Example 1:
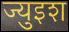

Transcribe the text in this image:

ज्युइश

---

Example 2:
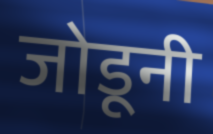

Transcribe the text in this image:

जोडूनी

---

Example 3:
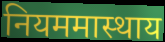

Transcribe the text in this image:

नियममास्थाय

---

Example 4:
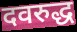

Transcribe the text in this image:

दवरुद्ध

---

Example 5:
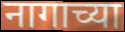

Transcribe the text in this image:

नागाच्या